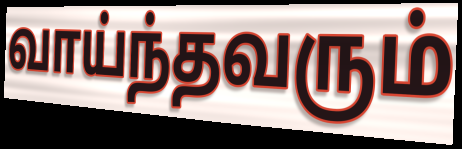
வாய்ந்தவரும்